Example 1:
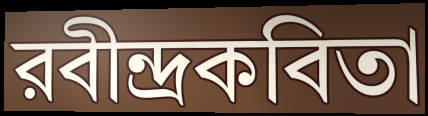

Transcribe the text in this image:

রবীন্দ্রকবিতা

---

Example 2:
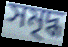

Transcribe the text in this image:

সমৃদ্ধ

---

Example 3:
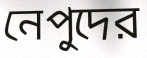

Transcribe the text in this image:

নেপুদের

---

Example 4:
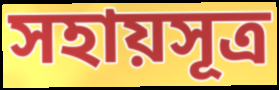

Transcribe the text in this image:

সহায়সূত্র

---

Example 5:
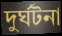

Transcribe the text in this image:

দুর্ঘটনা